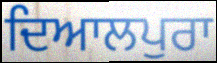
ਦਿਆਲਪੁਰਾ